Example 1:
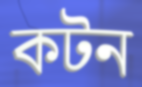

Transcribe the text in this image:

কটন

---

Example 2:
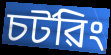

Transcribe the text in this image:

চৰ্টৱিং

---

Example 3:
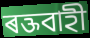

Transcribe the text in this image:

ৰক্তবাহী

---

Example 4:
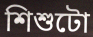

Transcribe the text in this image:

শিশুটো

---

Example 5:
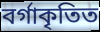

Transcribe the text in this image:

বৰ্গাকৃতিত